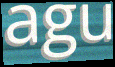
agu